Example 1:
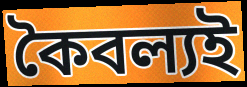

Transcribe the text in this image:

কৈবল্যই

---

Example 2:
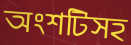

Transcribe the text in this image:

অংশটিসহ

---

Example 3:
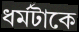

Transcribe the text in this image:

ধর্মটাকে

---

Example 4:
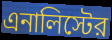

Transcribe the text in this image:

এনালিস্টের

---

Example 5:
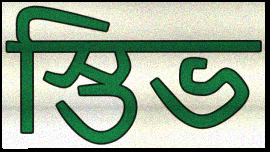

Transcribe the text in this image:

স্তিভ